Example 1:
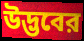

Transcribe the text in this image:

উদ্ভবের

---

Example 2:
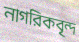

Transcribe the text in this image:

নাগরিকবৃন্দ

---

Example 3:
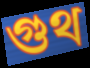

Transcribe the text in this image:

গুথ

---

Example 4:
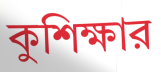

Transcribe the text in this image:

কুশিক্ষার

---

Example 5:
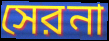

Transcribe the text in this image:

সেরনা